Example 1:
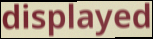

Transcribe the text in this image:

displayed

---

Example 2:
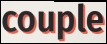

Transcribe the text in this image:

couple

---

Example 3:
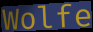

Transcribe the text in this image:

Wolfe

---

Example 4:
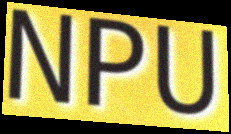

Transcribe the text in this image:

NPU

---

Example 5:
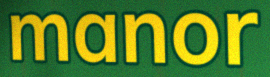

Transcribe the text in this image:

manor